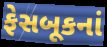
ફેસબૂકનાં